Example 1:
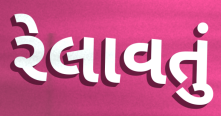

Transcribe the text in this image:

રેલાવતું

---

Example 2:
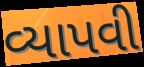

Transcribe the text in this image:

વ્યાપવી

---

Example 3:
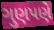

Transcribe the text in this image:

ગુણપણે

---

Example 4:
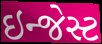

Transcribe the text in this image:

ઇન્જેસ્ટ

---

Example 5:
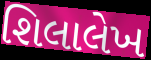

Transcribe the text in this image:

શિલાલેખ